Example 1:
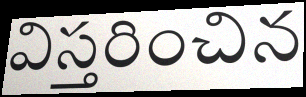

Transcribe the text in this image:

విస్తరించిన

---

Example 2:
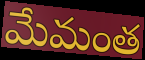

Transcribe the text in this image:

మేమంత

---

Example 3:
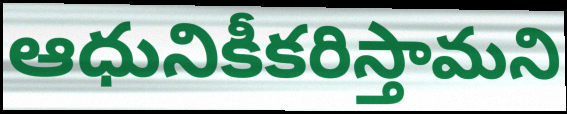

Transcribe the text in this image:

ఆధునికీకరిస్తామని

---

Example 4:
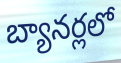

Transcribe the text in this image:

బ్యానర్లలో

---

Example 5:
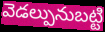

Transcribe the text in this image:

వెడల్పునుబట్టి